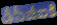
డీసీజీఐకి